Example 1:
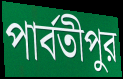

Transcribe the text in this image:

পার্বতীপুর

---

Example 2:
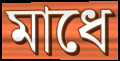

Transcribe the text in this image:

মাধে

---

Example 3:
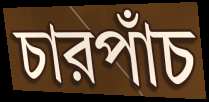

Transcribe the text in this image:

চারপাঁচ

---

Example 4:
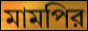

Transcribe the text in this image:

মামপির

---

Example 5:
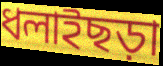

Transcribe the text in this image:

ধলাইছড়া